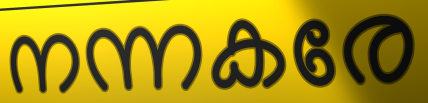
നന്നകരേ